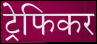
ट्रेफिकर